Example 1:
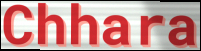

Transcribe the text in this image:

Chhara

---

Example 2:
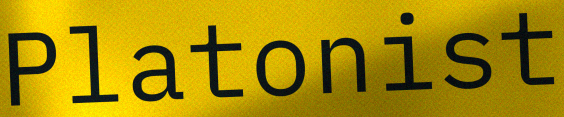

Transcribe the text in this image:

Platonist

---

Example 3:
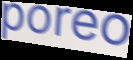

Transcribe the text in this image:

poreo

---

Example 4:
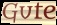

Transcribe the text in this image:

Gute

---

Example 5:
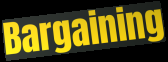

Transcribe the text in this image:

Bargaining